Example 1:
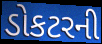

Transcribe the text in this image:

ડોકટરની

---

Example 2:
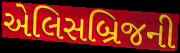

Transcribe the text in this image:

એલિસબ્રિજની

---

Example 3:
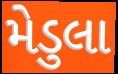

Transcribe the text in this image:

મેડુલા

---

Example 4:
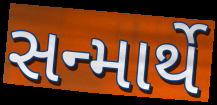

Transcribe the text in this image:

સન્માર્થે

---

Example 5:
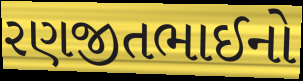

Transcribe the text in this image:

રણજીતભાઈનો